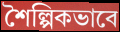
শৈল্পিকভাবে